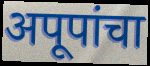
अपूपांचा